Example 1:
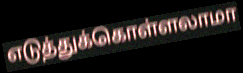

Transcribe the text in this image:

எடுத்துக்கொள்ளலாமா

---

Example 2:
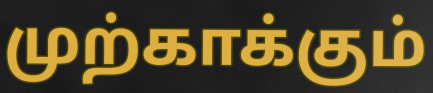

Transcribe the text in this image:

முற்காக்கும்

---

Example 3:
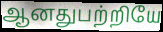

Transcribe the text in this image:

ஆனதுபற்றியே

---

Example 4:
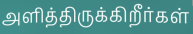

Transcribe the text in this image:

அளித்திருக்கிறீர்கள்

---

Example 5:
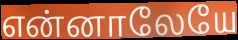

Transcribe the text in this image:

என்னாலேயே